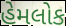
હેમલોક